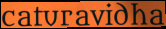
caturavidha